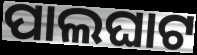
ପାଲଘାଟ